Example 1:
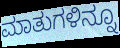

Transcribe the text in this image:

ಮಾತುಗಳಿನ್ನೂ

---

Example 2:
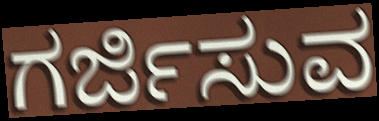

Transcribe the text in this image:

ಗರ್ಜಿಸುವ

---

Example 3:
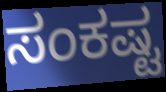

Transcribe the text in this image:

ಸಂಕಷ್ಟ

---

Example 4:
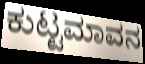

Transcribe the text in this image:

ಕುಟ್ಟಮಾವನ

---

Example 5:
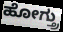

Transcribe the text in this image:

ಹೋಗ್ತ್ರು